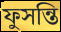
ফুসন্তি